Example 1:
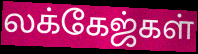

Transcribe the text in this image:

லக்கேஜ்கள்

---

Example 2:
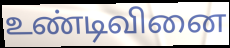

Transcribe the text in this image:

உண்டிவினை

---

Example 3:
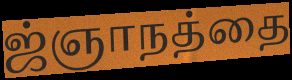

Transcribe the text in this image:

ஜ்ஞாநத்தை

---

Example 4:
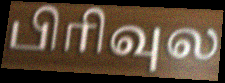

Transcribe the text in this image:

பிரிவுல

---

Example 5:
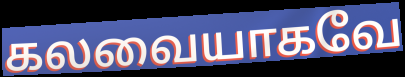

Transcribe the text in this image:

கலவையாகவே